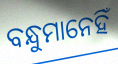
ବନ୍ଧୁମାନେହିଁ